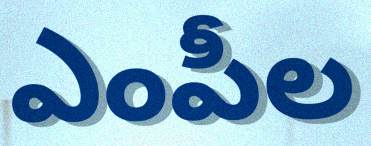
ఎంపీల